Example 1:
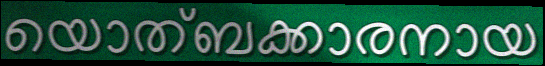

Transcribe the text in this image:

യൊത്ബക്കാരനായ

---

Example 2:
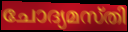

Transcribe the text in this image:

ചോദ്യമസ്തി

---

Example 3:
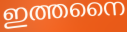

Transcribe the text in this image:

ഇത്തനൈ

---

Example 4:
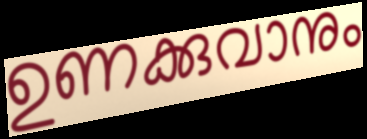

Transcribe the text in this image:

ഉണക്കുവാനും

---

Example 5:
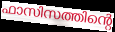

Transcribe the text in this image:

ഫാസിസത്തിന്റെ